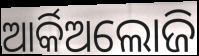
ଆର୍କିଅଲୋଜି